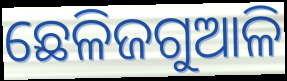
ଛେଳିଜଗୁଆଳି